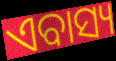
ଏବାସ୍ୟ